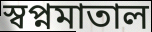
স্বপ্নমাতাল